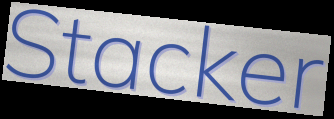
Stacker